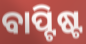
ବାପ୍ଟିଷ୍ଟ